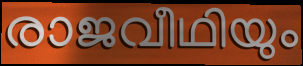
രാജവീഥിയും